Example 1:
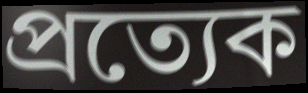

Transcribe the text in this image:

প্ৰত্য়েক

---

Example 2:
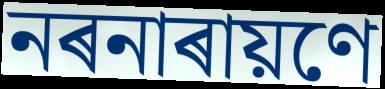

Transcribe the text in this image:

নৰনাৰায়ণে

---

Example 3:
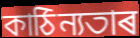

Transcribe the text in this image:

কাঠিন্যতাৰ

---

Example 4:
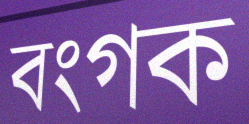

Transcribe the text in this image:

বংগক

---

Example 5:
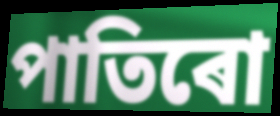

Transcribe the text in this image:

পাতিৰো